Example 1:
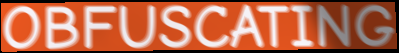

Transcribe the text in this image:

OBFUSCATING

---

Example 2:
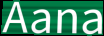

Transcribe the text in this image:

Aana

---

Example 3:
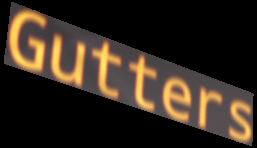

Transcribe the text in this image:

Gutters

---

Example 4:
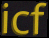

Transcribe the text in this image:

icf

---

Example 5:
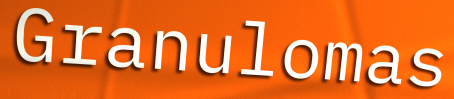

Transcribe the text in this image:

Granulomas